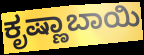
ಕೃಷ್ಣಾಬಾಯಿ